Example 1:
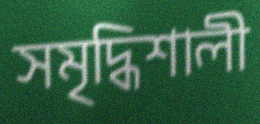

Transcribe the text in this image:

সমৃদ্ধিশালী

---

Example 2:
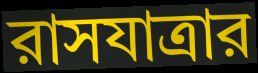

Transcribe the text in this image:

রাসযাত্রার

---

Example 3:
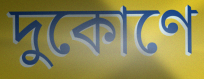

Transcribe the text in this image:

দুকোণে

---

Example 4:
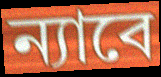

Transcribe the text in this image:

ন্যাবে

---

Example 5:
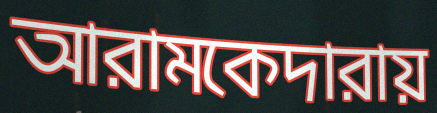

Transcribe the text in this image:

আরামকেদারায়